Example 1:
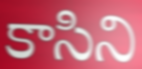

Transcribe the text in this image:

కాసిని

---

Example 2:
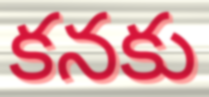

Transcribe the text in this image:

కనకు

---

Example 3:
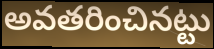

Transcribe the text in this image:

అవతరించినట్టు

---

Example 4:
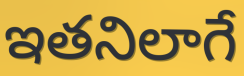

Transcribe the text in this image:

ఇతనిలాగే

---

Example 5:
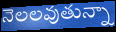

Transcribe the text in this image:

నెలలవుతున్నా